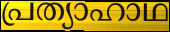
പ്രത്യാഹാഥ